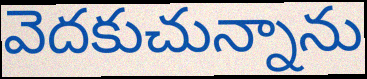
వెదకుచున్నాను